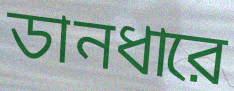
ডানধারে